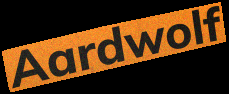
Aardwolf